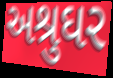
અશ્રુઘર